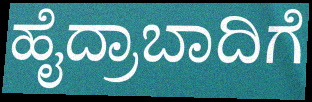
ಹೈದ್ರಾಬಾದಿಗೆ